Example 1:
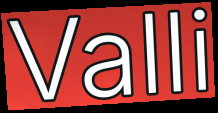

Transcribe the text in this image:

Valli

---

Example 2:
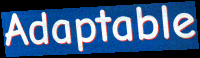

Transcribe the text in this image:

Adaptable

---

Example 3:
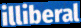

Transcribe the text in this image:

illiberal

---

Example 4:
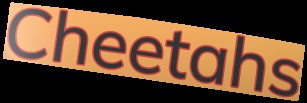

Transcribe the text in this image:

Cheetahs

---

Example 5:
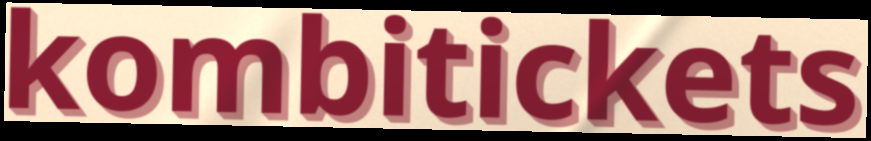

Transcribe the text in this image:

kombitickets